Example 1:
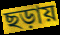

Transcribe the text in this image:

ছড়ায়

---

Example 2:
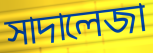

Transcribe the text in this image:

সাদালেজা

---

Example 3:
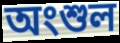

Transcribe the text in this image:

অংশুল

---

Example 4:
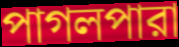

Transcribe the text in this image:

পাগলপারা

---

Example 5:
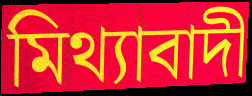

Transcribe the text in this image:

মিথ্যাবাদী